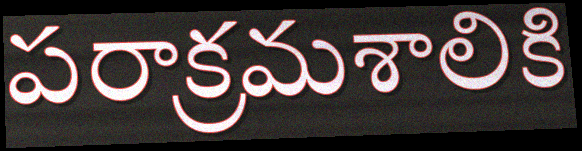
పరాక్రమశాలికి